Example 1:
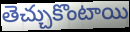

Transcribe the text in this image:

తెచ్చుకొంటాయి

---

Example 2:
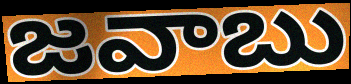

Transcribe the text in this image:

జవాబు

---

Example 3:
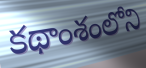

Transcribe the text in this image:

కథాంశంలోని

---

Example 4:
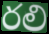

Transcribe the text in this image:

రలి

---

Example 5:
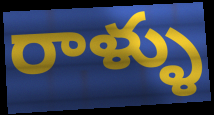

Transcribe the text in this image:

రాళ్ళు